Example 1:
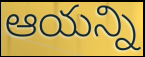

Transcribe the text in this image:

ఆయన్ని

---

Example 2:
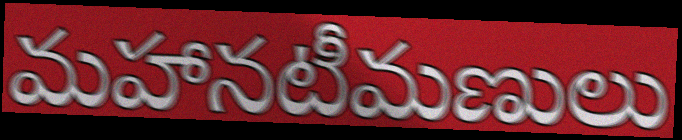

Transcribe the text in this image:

మహానటీమణులు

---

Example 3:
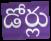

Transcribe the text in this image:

డోర్లు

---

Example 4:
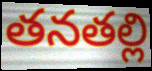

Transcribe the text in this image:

తనతల్లి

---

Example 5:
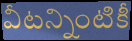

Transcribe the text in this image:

వీటన్నింటికీ